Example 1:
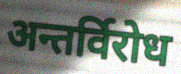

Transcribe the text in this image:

अन्तर्विरोध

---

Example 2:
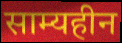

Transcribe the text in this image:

साम्यहीन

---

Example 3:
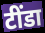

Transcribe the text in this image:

टींडा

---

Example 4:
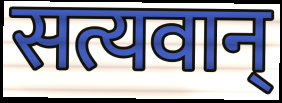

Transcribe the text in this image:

सत्यवान्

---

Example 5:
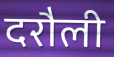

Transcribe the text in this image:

दरौली